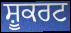
ਸ਼ੂਕਰਟ